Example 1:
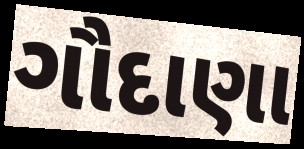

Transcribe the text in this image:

ગૌદાણા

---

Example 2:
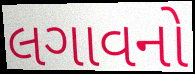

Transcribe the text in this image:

લગાવનો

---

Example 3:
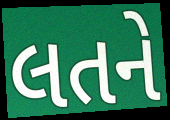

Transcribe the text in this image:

લતને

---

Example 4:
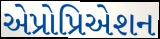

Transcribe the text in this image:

એપ્રોપ્રિએશન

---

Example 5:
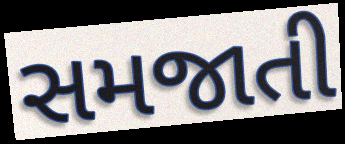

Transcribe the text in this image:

સમજાતી